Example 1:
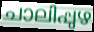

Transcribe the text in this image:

ചാലിപ്പുഴ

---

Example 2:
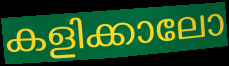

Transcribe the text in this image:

കളിക്കാലോ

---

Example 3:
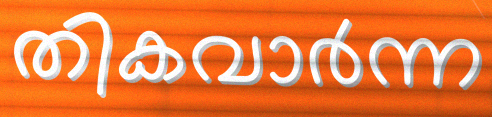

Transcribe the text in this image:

തികവാർന്ന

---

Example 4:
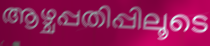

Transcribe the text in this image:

ആഴ്ചപ്പതിപ്പിലൂടെ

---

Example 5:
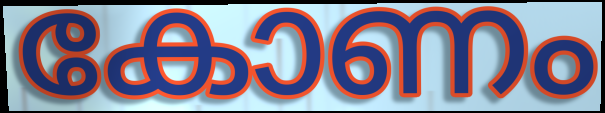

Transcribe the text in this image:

കോണം